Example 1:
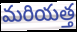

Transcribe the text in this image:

మరియత్త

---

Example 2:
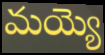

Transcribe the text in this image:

మయ్యె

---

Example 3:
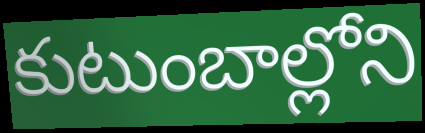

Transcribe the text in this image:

కుటుంబాల్లోని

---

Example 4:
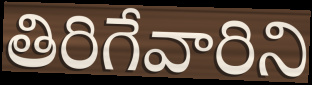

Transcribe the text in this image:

తిరిగేవారిని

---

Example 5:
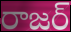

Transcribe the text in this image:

రాజర్